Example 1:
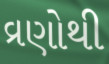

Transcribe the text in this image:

વ્રણોથી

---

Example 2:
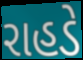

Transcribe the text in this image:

રાહડે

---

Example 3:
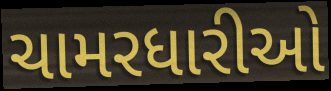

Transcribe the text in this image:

ચામરધારીઓ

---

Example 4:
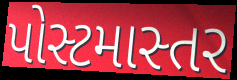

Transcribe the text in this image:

પોસ્ટમાસ્તર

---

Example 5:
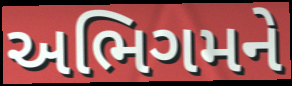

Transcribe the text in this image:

અભિગમને